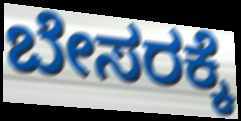
ಬೇಸರಕ್ಕೆ